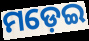
ମଡ଼େଇ